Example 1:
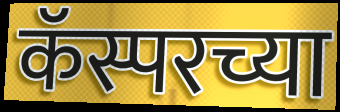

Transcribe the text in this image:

कॅस्परच्या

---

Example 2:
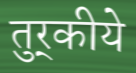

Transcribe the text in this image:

तुर्कीये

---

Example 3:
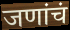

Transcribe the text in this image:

जणांचं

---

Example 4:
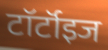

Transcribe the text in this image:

टॉर्टॉइज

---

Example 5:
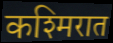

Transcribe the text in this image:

कश्मिरात